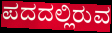
ಪದದಲ್ಲಿರುವ